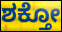
ಶಕ್ತೋ